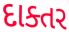
દાક્તર